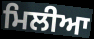
ਮਿਲੀਆ